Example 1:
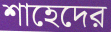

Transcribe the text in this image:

শাহেদের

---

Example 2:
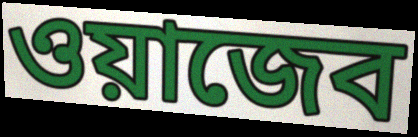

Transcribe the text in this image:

ওয়াজেব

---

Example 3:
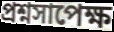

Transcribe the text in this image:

প্রশ্নসাপেক্ষ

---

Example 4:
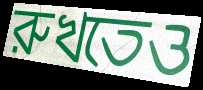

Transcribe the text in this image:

রুখতেও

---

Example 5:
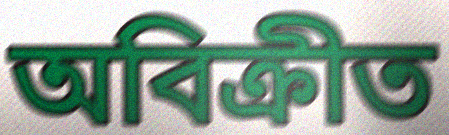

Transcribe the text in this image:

অবিক্রীত